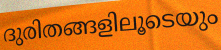
ദുരിതങ്ങളിലൂടെയും